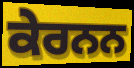
ਕੇਰਨਨ